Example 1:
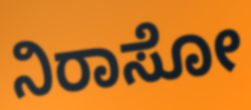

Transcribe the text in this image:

ನಿರಾಸೋ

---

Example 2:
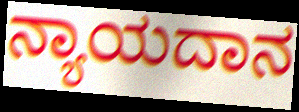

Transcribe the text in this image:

ನ್ಯಾಯದಾನ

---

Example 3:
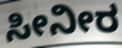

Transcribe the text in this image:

ಸೀನೀರ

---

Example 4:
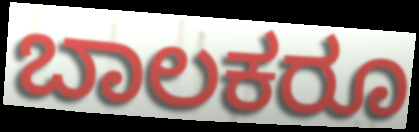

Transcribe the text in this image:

ಬಾಲಕರೂ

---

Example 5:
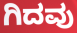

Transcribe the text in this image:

ಗಿದವು